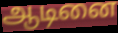
ஆடினை